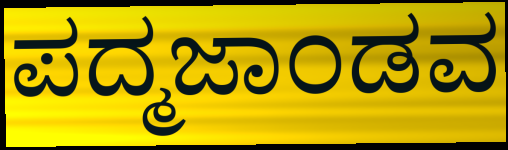
ಪದ್ಮಜಾಂಡವ